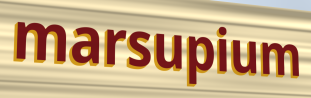
marsupium